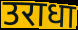
उराधा